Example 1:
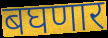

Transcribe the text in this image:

बघणार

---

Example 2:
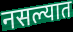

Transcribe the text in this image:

नसल्यात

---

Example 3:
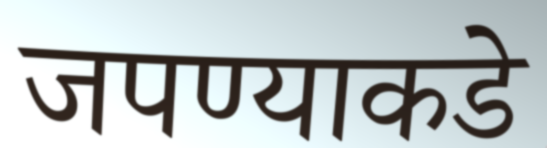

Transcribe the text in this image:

जपण्याकडे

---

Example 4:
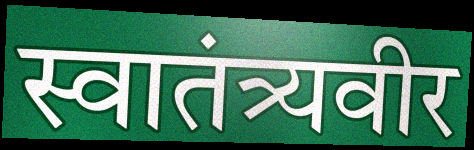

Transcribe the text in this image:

स्वातंत्र्यवीर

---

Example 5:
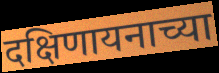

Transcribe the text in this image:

दक्षिणायनाच्या